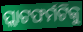
ପ୍ଲାଟଫର୍ମଟିକୁ